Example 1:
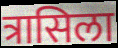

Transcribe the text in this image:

त्रासिला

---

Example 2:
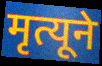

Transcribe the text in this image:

मृत्यूने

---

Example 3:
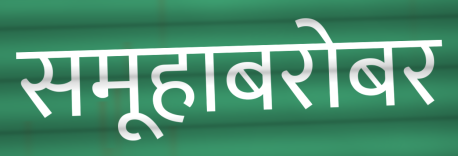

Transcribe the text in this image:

समूहाबरोबर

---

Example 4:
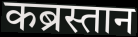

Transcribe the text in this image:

कब्रस्तान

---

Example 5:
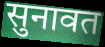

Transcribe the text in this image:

सुनावत